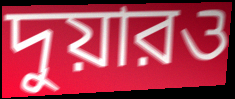
দুয়ারও